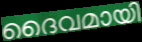
ദൈവമായി